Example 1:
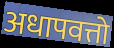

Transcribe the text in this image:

अधापवत्तो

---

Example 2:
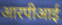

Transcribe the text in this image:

आरपीआई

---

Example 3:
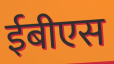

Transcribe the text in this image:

ईबीएस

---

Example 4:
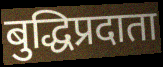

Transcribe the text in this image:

बुद्धिप्रदाता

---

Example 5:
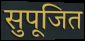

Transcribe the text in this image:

सुपूजित